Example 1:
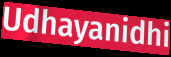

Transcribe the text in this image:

Udhayanidhi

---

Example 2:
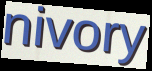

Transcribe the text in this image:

nivory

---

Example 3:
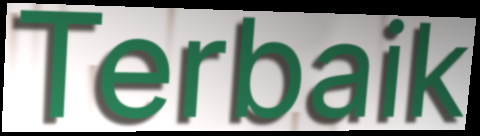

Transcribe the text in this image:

Terbaik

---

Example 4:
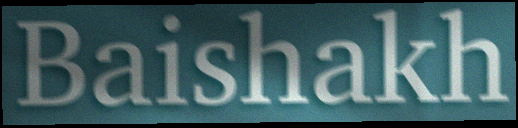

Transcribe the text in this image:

Baishakh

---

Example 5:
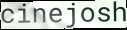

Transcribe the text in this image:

cinejosh